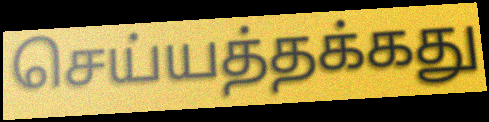
செய்யத்தக்கது